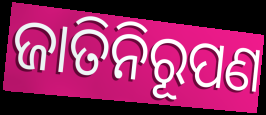
ଜାତିନିରୂପଣ